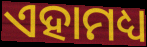
ଏହାମଧ୍ୟ